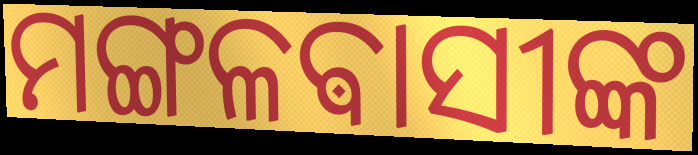
ମଙ୍ଗଳଵାସୀଙ୍କ